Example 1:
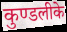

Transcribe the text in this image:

कुण्डलीके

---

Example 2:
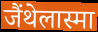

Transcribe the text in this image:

जैंथेलास्मा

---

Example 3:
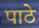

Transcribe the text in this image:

पाठे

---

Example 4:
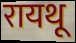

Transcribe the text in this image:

रायथू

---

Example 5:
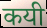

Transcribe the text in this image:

कयी